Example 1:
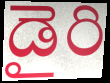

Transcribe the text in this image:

డైరి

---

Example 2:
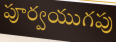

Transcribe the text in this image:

పూర్వయుగపు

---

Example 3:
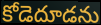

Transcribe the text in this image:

కోడెదూడను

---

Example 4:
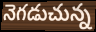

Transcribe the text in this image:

నెగడుచున్న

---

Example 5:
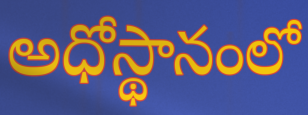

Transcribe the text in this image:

అధోస్థానంలో